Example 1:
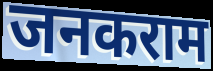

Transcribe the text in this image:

जनकराम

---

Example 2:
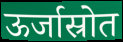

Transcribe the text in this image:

ऊर्जास्रोत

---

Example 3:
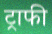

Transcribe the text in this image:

ट्राफी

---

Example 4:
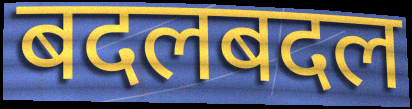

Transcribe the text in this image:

बदलबदल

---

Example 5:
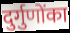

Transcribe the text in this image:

दुर्गुणोंका